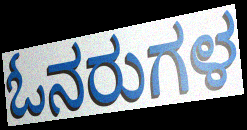
ಓನರುಗಳ